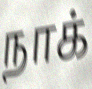
நாக்